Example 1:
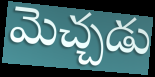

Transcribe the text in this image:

మెచ్చడు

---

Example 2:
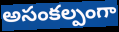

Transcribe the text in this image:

అసంకల్పంగా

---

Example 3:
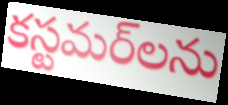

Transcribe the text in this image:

కస్టమర్‌లను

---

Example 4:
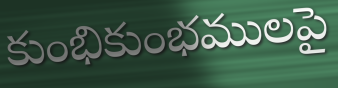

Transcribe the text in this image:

కుంభికుంభములపై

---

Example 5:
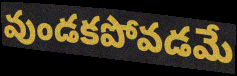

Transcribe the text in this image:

వుండకపోవడమే